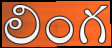
లింగ